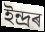
ইন্দ্ৰৰ